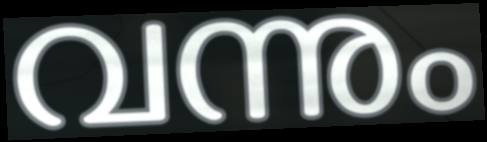
വന്നും